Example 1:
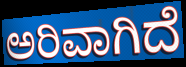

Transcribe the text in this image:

ಅರಿವಾಗಿದೆ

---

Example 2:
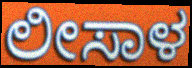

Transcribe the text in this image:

ಲೀಸಾಳ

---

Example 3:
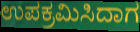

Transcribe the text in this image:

ಉಪಕ್ರಮಿಸಿದಾಗ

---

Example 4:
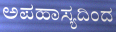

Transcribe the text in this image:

ಅಪಹಾಸ್ಯದಿಂದ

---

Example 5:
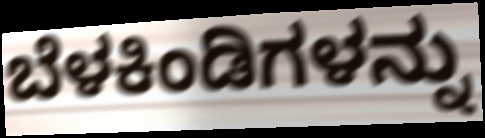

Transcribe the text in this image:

ಬೆಳಕಿಂಡಿಗಳನ್ನು